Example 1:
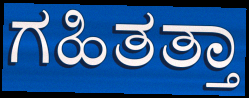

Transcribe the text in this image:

ಗಹಿತತ್ತಾ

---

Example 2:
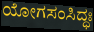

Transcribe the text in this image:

ಯೋಗಸಂಸಿದ್ಧಃ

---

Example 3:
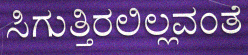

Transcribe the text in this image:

ಸಿಗುತ್ತಿರಲಿಲ್ಲವಂತೆ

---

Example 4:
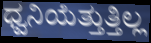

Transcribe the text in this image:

ಧ್ವನಿಯೆತ್ತುತ್ತಿಲ್ಲ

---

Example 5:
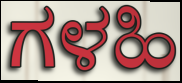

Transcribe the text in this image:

ಗಳಹಿ